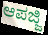
ಆಪಜ್ಜಿ